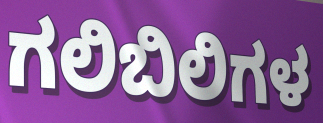
ಗಲಿಬಿಲಿಗಳ